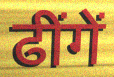
ढींगें